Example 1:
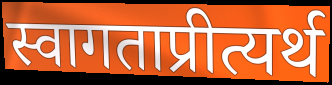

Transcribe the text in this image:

स्वागताप्रीत्यर्थ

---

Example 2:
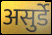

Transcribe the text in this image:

असुर्डे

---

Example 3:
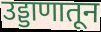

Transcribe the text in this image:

उड्डाणातून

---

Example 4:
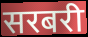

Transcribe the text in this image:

सरबरी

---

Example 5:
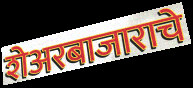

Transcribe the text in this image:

शेअरबाजाराचे